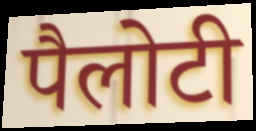
पैलोटी